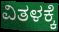
ವಿತಳಕ್ಕೆ